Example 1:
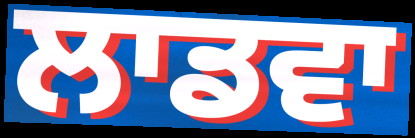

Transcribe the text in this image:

ਲਾਡਵਾ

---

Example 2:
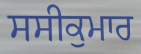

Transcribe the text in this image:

ਸਸੀਕੁਮਾਰ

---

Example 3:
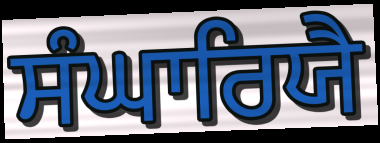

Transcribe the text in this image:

ਸੰਘਾਰਿਯੈ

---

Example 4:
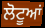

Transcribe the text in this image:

ਲੋਟੂਆਂ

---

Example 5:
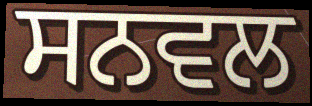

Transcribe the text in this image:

ਸਨਵਲ